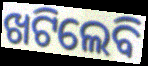
ଖଟିଲେବି